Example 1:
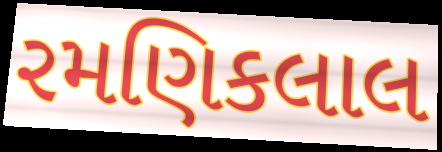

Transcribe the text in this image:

રમણિકલાલ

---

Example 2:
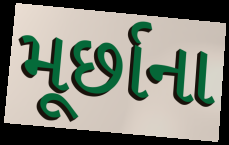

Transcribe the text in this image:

મૂર્છાના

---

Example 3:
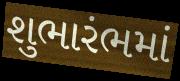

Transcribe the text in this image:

શુભારંભમાં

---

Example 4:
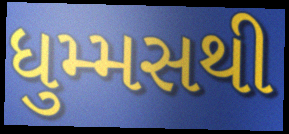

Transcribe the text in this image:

ધુમ્મસથી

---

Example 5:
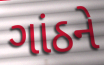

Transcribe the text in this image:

ગાંઠને